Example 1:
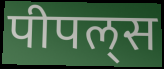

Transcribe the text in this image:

पीपल्स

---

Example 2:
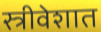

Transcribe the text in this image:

स्त्रीवेशात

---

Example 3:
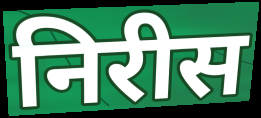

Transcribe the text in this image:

निरीस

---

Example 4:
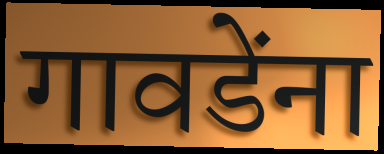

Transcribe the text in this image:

गावडेंना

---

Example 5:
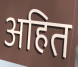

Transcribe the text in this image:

अहित